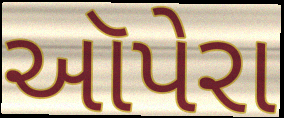
ઑપેરા